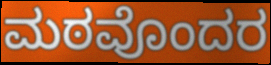
ಮಠವೊಂದರ